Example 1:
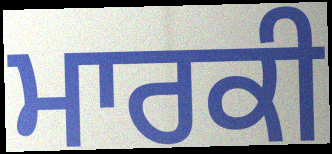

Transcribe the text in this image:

ਮਾਰਕੀ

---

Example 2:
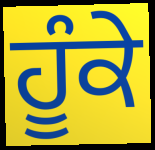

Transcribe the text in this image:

ਹੂੰਕੇ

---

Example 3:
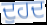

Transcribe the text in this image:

ਦੁਹਦ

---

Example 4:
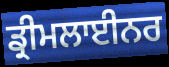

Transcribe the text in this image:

ਡ੍ਰੀਮਲਾਈਨਰ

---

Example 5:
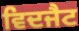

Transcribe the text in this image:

ਵਿਦਜੈਟ